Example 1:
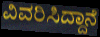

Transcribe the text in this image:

ವಿವರಿಸಿದ್ದಾನೆ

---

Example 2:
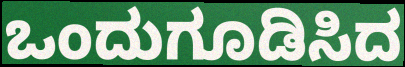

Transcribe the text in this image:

ಒಂದುಗೂಡಿಸಿದ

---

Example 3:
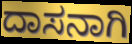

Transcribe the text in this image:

ದಾಸನಾಗಿ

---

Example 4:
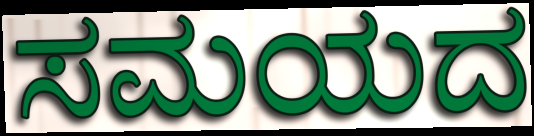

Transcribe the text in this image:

ಸಮಯದ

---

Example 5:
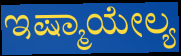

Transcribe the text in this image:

ಇಷ್ಮಾಯೇಲ್ಯ